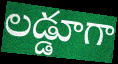
లడ్డూగా